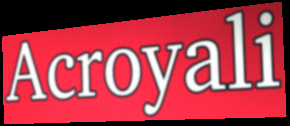
Acroyali